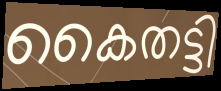
കൈതട്ടി